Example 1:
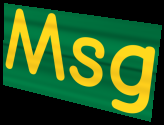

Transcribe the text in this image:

Msg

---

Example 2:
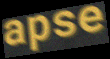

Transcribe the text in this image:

apse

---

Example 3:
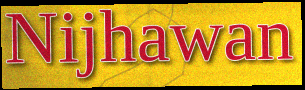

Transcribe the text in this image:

Nijhawan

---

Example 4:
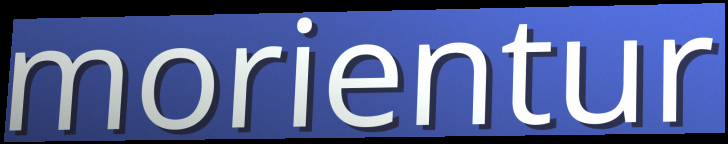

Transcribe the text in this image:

morientur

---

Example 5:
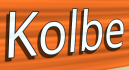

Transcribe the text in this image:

Kolbe